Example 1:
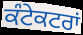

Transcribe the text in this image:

ਕੰਟੇਕਟਰਾਂ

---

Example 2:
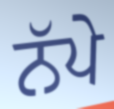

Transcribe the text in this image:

ਨੱਪੇ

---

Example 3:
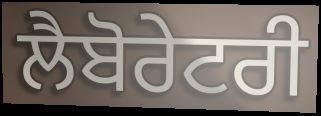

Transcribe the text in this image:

ਲੈਬੋਰੇਟਰੀ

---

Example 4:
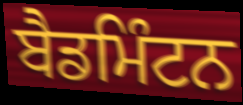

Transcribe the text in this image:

ਬੈਡਮਿੰਟਨ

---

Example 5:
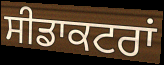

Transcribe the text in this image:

ਸੀਡਾਕਟਰਾਂ